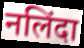
नलिंदा